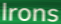
Irons